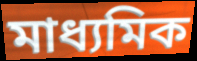
মাধ্যমিক